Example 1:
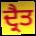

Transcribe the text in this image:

ਦ੍ਰੈਤ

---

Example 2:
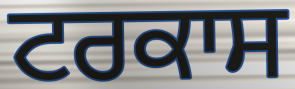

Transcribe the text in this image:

ਟਰਕਾਸ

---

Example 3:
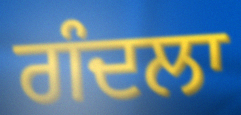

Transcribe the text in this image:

ਗੰਦਲਾ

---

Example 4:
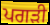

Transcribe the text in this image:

ਪਗੜੀ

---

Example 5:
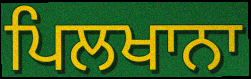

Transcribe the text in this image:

ਪਿਲਖਾਨਾ